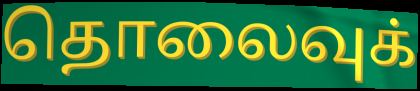
தொலைவுக்